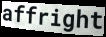
affright